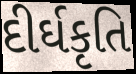
દીર્ઘકૃતિ